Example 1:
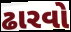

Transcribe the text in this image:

ઢારવો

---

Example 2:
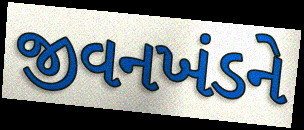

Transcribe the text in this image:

જીવનખંડને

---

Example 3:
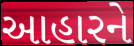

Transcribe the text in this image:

આહારને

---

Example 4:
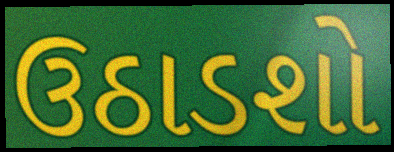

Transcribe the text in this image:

ઉઠાડશો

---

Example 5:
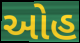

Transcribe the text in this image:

ઓહ